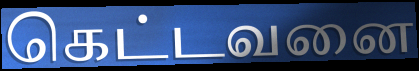
கெட்டவனை